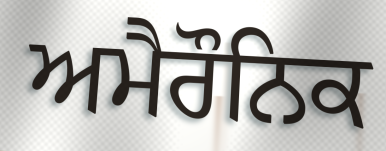
ਅਮੈਰੌਨਿਕ